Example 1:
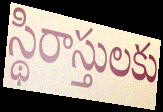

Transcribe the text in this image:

స్థిరాస్తులకు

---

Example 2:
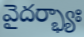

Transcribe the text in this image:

వైదర్భ్యాః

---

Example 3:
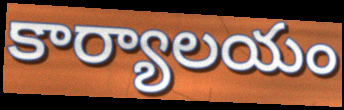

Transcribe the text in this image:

కార్యాలయం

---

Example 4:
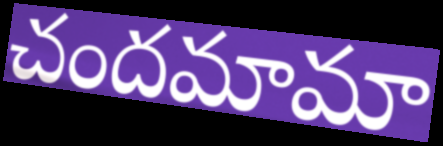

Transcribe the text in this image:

చందమామా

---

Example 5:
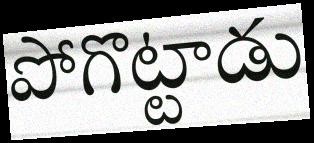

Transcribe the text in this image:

పోగొట్టాడు